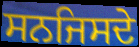
ਸਨਜਿਸਦੇ